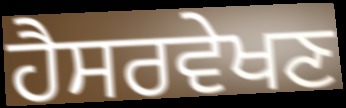
ਹੈਸਰਵੇਖਣ